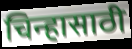
चिन्हासाठी